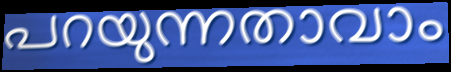
പറയുന്നതാവാം